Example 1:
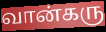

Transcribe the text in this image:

வான்கரு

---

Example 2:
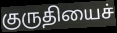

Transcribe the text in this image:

குருதியைச்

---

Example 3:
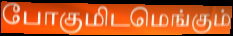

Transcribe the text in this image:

போகுமிடமெங்கும்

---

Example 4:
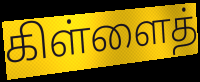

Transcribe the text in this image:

கிள்ளைத்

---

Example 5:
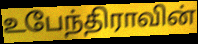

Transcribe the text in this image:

உபேந்திராவின்